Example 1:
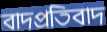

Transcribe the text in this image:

বাদপ্রতিবাদ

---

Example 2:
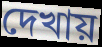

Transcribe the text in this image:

দেখায়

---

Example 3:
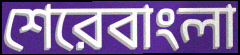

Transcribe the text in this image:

শেরেবাংলা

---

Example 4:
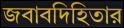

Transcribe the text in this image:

জবাবদিহিতার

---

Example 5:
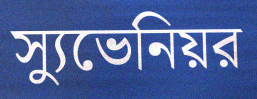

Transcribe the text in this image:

স্যুভেনিয়র